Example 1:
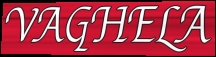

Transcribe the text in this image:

VAGHELA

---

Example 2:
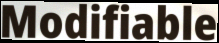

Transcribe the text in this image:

Modifiable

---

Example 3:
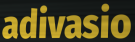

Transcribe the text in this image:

adivasio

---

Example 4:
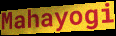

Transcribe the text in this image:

Mahayogi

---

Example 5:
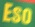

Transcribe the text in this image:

Eso